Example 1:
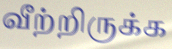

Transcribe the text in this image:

வீற்றிருக்க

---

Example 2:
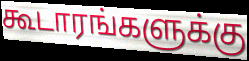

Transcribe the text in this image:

கூடாரங்களுக்கு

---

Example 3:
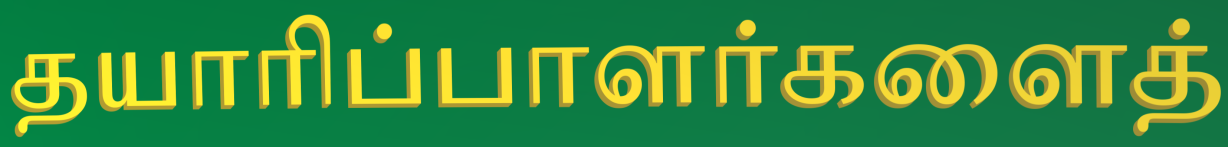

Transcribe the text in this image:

தயாரிப்பாளர்களைத்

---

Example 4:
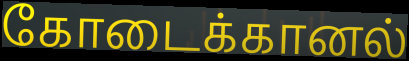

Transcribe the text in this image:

கோடைக்கானல்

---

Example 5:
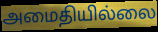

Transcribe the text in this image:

அமைதியில்லை